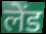
लेंड